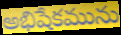
అభిషేకమును